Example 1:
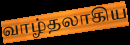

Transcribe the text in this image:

வாழ்தலாகிய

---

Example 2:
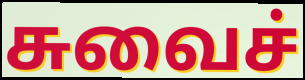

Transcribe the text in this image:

சுவைச்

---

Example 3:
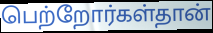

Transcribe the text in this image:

பெற்றோர்கள்தான்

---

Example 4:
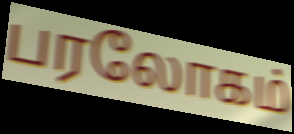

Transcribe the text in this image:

பரலோகம்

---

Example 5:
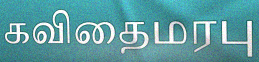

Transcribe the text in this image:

கவிதைமரபு